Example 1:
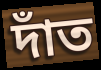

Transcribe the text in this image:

দাঁত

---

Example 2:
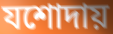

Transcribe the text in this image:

যশোদায়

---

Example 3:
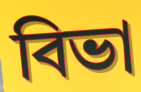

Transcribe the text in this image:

বিভা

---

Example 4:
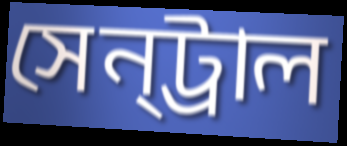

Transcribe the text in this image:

সেন্‌ট্রাল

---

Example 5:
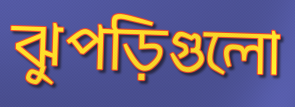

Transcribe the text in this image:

ঝুপড়িগুলো